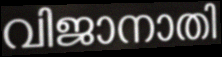
വിജാനാതി